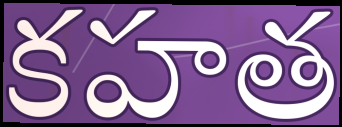
కహత